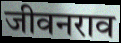
जीवनराव